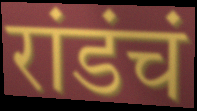
रांडंचं